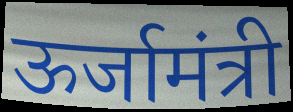
ऊर्जामंत्री